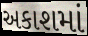
અકાશમાં